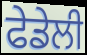
ਫੇਡੇਲੀ